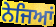
ਨੇਜਿਆਂ